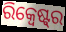
ରିକ୍ୱେଷ୍ଟ୍‌ର